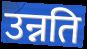
उन्नति